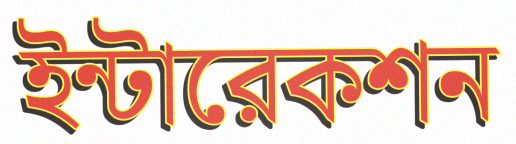
ইন্টারেকশন